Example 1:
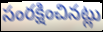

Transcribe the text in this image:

సంరక్షించినట్లు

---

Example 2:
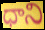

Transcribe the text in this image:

ధాని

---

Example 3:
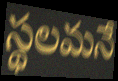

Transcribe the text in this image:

స్థలమనే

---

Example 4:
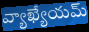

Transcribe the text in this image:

వ్యాఖ్యేయమ్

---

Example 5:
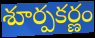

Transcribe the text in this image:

శూర్పకర్ణం